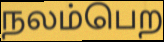
நலம்பெற